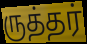
ருத்தர்